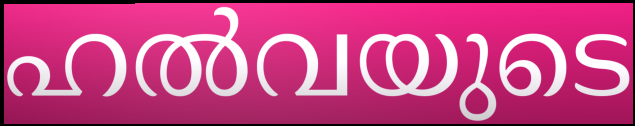
ഹൽവയുടെ